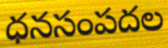
ధనసంపదల